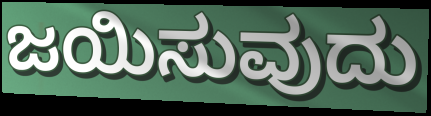
ಜಯಿಸುವುದು